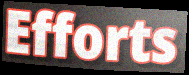
Efforts